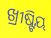
ଖ୍ରୀଷ୍ଟିୟ